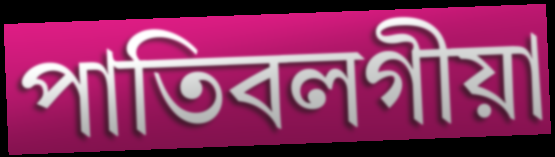
পাতিবলগীয়া